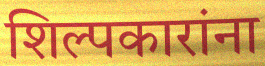
शिल्पकारांना